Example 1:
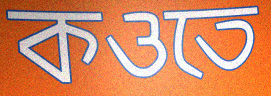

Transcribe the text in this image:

কওতে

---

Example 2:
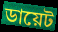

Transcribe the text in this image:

ডায়েট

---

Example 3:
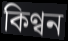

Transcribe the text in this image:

কিণ্বন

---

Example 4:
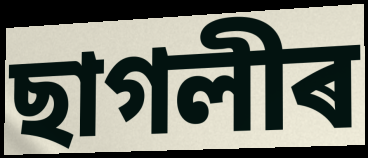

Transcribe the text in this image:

ছাগলীৰ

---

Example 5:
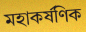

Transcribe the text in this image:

মহাকৰ্ষণিক